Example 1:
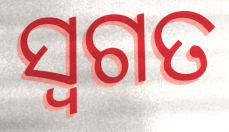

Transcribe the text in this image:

ସ୍ଵଗତ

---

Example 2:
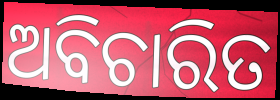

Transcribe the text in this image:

ଅବିଚାରିତ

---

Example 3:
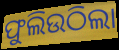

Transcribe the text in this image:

ଫୁଲିଉଠିଲା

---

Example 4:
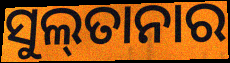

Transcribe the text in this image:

ସୁଲ୍‌ତାନାର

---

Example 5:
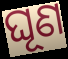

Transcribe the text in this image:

ଘୂଣ